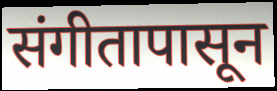
संगीतापासून